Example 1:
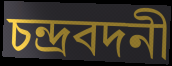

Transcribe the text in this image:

চন্দ্রবদনী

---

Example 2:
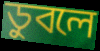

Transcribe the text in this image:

ডুবলে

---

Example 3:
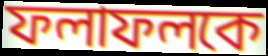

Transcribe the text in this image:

ফলাফলকে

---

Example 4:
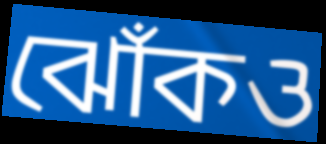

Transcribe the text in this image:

ঝোঁকও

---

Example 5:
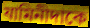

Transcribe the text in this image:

যামিনীদাকে